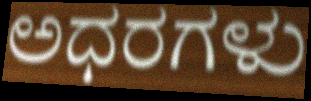
ಅಧರಗಳು